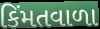
કિંમતવાળા